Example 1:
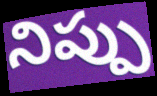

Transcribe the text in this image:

నిప్పు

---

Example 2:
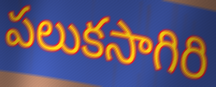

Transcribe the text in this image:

పలుకసాగిరి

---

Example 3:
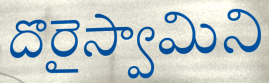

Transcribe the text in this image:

దొరైస్వామిని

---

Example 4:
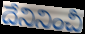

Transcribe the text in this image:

దేనినించీ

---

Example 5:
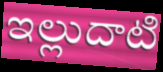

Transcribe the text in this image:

ఇల్లుదాటి